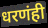
धरणंही